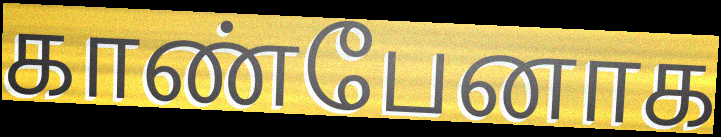
காண்பேனாக